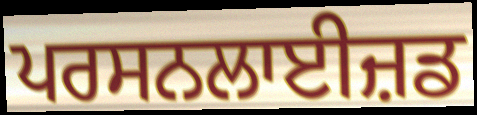
ਪਰਸਨਲਾਈਜ਼ਡ